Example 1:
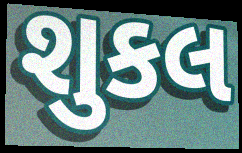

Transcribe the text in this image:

શુકલ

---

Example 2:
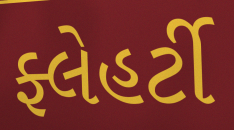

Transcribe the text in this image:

ફ્લેહર્ટી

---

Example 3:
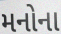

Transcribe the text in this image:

મનોના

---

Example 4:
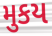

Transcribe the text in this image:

મુકય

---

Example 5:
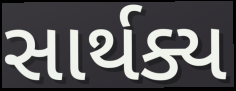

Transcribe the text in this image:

સાર્થક્ય